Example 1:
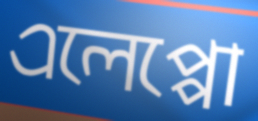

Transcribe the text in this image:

এলেপ্পো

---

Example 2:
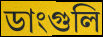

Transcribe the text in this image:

ডাংগুলি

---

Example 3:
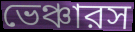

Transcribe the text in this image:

ভেঞ্চারস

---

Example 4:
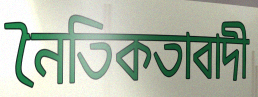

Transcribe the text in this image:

নৈতিকতাবাদী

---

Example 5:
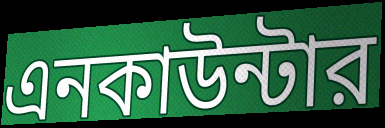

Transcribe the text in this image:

এনকাউন্টার